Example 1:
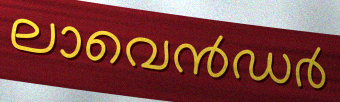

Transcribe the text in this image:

ലാവെൻഡർ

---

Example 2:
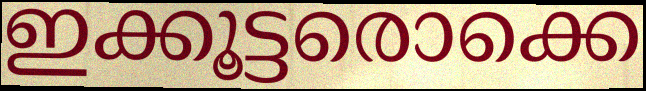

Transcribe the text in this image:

ഇക്കൂട്ടരൊക്കെ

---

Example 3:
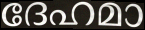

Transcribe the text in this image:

ദേഹമാ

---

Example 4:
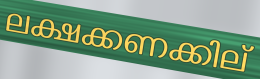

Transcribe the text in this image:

ലക്ഷക്കണക്കില്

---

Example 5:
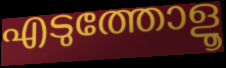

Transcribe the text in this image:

എടുത്തോളൂ